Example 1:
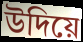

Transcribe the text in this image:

উদিয়ে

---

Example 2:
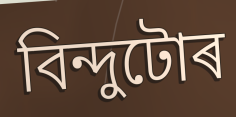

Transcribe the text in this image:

বিন্দুটোৰ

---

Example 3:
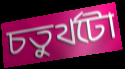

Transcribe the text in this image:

চতুৰ্থটো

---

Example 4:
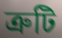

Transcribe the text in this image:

ত্ৰুটি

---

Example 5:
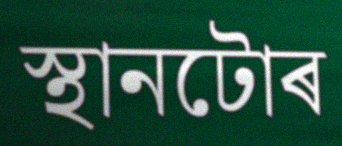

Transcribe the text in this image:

স্থানটোৰ